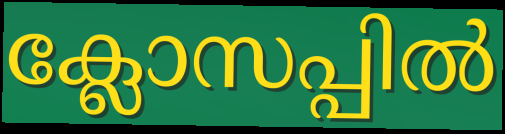
ക്ലോസപ്പിൽ